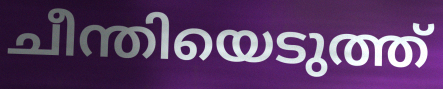
ചീന്തിയെടുത്ത്